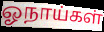
ஓநாய்கள்